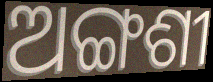
ଅଙ୍ଗଶୀ